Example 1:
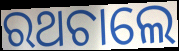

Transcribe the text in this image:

ରଥଚାଲେ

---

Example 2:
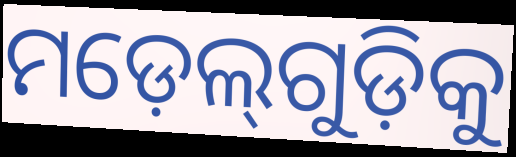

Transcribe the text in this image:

ମଡ଼େଲ୍‌ଗୁଡ଼ିକୁ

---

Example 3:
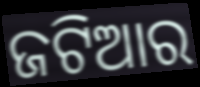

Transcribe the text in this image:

ଜଟିଆର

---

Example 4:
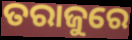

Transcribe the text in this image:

ତରାଜୁରେ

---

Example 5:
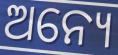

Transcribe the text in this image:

ଅନ୍ୟେ